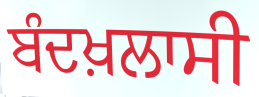
ਬੰਦਖ਼ਲਾਸੀ